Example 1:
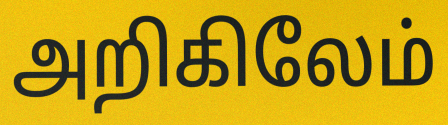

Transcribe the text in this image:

அறிகிலேம்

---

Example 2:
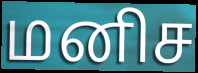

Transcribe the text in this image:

மனிச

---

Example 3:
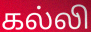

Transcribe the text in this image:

கல்லி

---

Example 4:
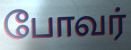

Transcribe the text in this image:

போவர்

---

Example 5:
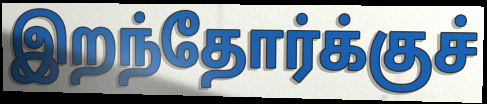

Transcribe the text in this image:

இறந்தோர்க்குச்